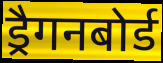
ड्रैगनबोर्ड